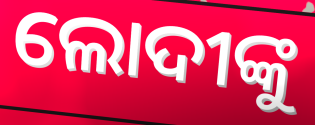
ଲୋଦୀଙ୍କୁ